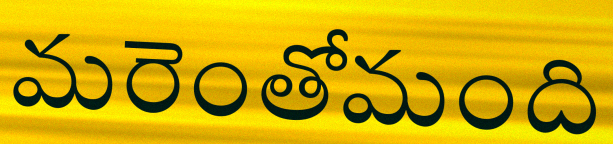
మరెంతోమంది